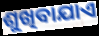
ଶୁଖିବାଯାଏ